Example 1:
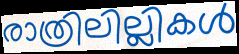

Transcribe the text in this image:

രാത്രിലില്ലികൾ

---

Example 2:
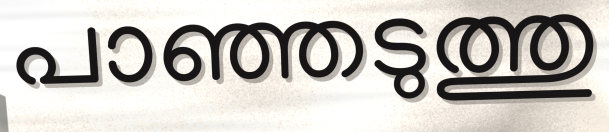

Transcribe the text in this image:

പാഞ്ഞടുത്തു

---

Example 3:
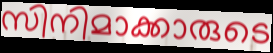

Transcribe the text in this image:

സിനിമാക്കാരുടെ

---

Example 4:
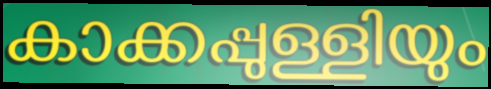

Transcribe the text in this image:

കാക്കപ്പുള്ളിയും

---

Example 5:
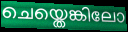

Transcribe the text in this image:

ചെയ്തെങ്കിലോ